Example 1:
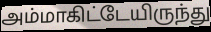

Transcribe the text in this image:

அம்மாகிட்டேயிருந்து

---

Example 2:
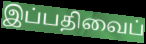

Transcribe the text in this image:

இப்பதிவைப்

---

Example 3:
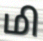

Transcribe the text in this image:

மி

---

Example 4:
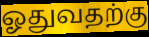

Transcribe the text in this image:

ஓதுவதற்கு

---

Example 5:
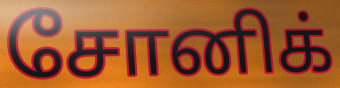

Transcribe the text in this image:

சோனிக்